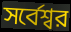
সর্বেশ্বর